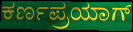
ಕರ್ಣಪ್ರಯಾಗ್